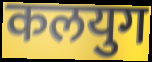
कलयुग